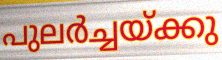
പുലർച്ചയ്ക്കു